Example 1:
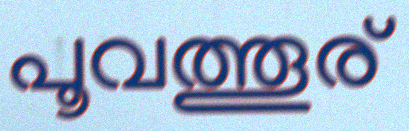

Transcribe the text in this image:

പൂവത്തൂര്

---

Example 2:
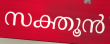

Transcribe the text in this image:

സക്തൂൻ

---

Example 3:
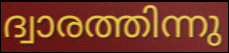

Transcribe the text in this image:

ദ്വാരത്തിന്നു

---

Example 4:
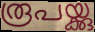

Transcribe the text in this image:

രൂപയ്ക്കു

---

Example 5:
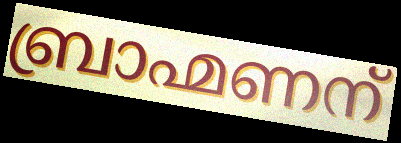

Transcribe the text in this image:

ബ്രാഹ്മണന്